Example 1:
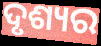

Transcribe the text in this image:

ଦୃଶ୍ୟର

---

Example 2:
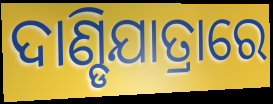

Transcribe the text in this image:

ଦାଣ୍ଡିଯାତ୍ରାରେ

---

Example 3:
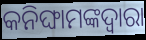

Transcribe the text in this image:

କନିଙ୍ଘାମଙ୍କଦ୍ଵାରା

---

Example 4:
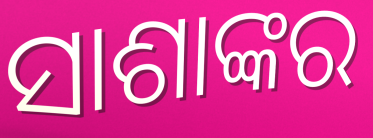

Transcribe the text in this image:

ସାଶାଙ୍କର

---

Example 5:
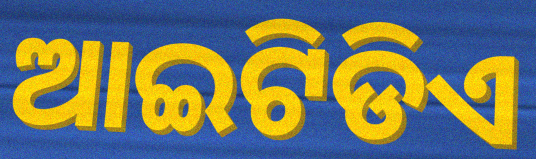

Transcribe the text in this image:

ଆଇଟିଡିଏ